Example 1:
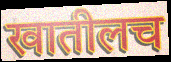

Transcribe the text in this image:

खातीलच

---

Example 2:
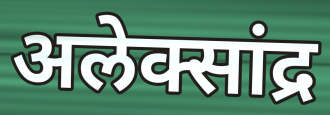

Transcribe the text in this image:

अलेक्सांद्र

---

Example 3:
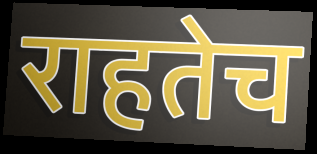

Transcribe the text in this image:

राहतेच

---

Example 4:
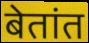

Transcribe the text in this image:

बेतांत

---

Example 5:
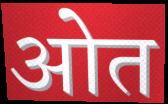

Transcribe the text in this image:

ओत